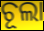
ଚୂଲା